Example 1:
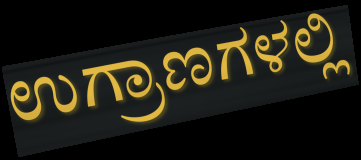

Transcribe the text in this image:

ಉಗ್ರಾಣಗಳಲ್ಲಿ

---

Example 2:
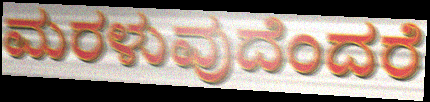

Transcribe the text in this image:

ಮರಳುವುದೆಂದರೆ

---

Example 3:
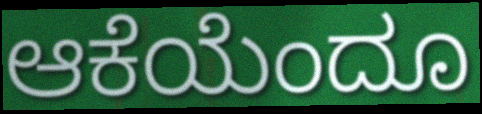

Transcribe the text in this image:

ಆಕೆಯೆಂದೂ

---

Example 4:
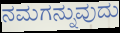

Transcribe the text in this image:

ನಮಗನ್ನುವುದು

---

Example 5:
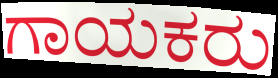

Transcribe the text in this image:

ಗಾಯಕರು